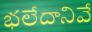
భలేదానివే